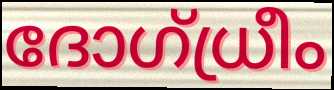
ദോഗ്ധ്രീം